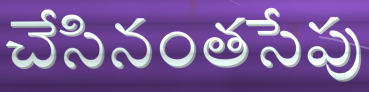
చేసినంతసేపు